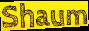
Shaum